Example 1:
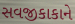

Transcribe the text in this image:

સવજીકાકાને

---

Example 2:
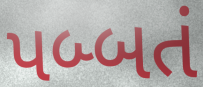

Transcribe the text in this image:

પબ્બતં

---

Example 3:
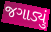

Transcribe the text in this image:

જગાડ્યું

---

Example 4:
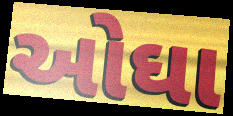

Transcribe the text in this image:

ઓઘા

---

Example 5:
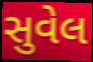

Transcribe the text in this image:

સુવેલ